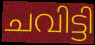
ചവിട്ടി